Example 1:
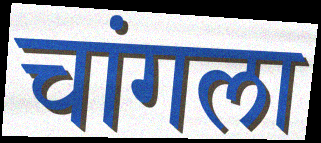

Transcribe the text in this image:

चांगला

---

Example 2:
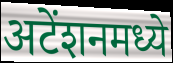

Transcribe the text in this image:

अटेंशनमध्ये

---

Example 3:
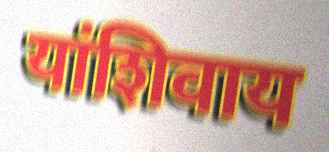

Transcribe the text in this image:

यांशिवाय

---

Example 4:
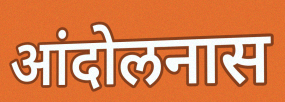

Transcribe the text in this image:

आंदोलनास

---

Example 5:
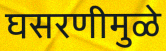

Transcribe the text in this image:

घसरणीमुळे